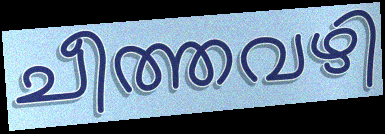
ചീത്തവഴി